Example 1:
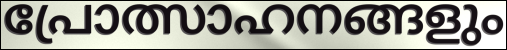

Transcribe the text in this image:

പ്രോത്സാഹനങ്ങളും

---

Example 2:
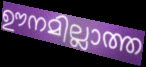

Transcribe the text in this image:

ഊനമില്ലാത്ത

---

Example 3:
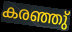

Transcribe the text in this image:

കരഞ്ഞു്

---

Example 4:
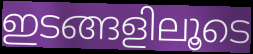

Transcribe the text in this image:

ഇടങ്ങളിലൂടെ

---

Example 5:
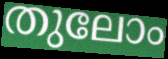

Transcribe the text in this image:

തുലോം